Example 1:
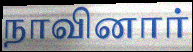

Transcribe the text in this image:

நாவினார்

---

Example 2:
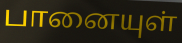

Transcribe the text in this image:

பானையுள்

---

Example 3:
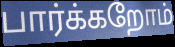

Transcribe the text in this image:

பார்க்கறோம்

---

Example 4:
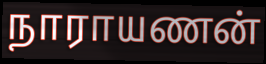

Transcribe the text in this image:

நாராயணன்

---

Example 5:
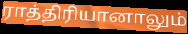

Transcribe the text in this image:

ராத்திரியானாலும்